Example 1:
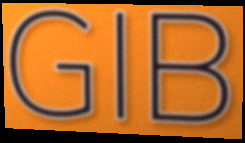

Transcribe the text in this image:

GIB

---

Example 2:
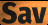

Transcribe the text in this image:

Sav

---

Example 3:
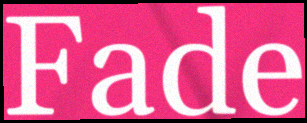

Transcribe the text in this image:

Fade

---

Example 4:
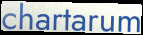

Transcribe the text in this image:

chartarum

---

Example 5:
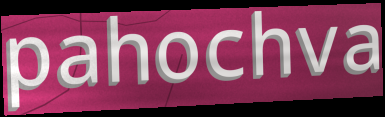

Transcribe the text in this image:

pahochva